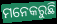
ମନେକରୁଛି